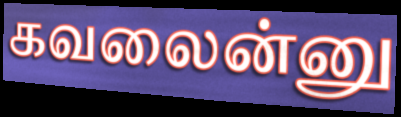
கவலைன்னு